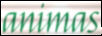
animas